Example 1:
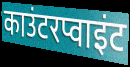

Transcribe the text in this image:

काउंटरप्वाइंट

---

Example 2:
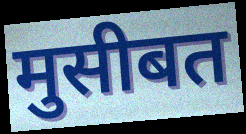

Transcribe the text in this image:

मुसीबत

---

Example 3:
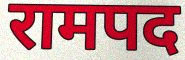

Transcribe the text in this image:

रामपद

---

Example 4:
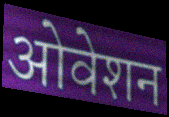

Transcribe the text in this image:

ओवेशन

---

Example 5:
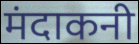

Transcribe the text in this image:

मंदाकनी